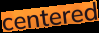
centered